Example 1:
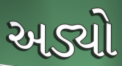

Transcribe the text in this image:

અડ્યો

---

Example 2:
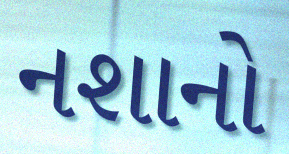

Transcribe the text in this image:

નશાનો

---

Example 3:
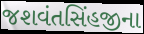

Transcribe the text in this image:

જશવંતસિંહજીના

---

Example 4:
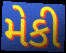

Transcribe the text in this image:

મેકી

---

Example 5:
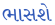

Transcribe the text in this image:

ભાસશે